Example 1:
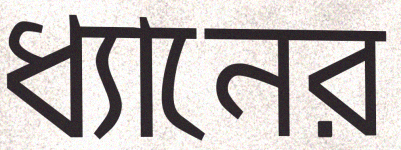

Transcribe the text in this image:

ধ্যানের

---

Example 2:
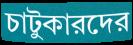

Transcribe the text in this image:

চাটুকারদের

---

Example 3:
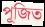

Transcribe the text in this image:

পূজিত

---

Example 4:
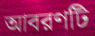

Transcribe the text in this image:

আবরণটি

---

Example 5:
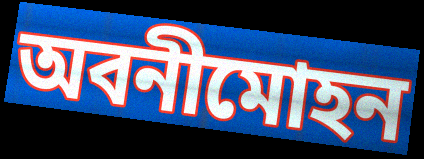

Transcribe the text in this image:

অবনীমোহন